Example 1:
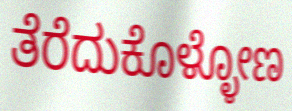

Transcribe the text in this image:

ತೆರೆದುಕೊಳ್ಳೋಣ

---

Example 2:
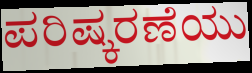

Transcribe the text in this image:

ಪರಿಷ್ಕರಣೆಯು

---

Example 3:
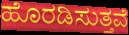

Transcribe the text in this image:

ಹೊರಡಿಸುತ್ತವೆ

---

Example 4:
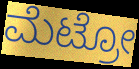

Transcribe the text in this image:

ಮೆಟ್ರೋ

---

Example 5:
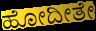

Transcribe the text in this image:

ಹೋದೀತೇ